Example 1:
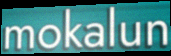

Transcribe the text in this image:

mokalun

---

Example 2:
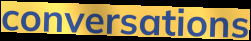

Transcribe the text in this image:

conversations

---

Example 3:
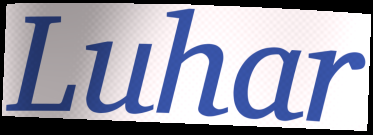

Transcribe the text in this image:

Luhar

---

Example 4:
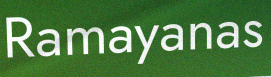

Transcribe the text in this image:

Ramayanas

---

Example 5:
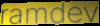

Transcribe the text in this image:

ramdev